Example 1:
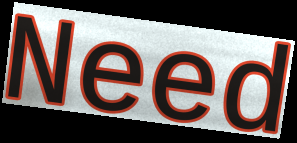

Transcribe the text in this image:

Need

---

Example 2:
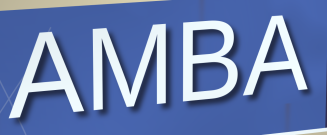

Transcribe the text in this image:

AMBA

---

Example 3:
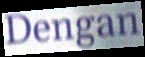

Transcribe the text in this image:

Dengan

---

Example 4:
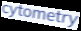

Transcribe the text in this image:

cytometry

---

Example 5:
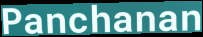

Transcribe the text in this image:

Panchanan